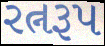
રત્નરૂપ